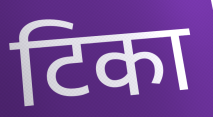
टिका